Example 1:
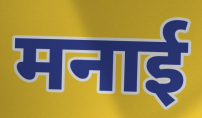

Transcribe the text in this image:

मनाई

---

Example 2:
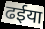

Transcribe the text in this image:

ढईया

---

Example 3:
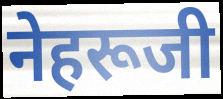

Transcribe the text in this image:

नेहरूजी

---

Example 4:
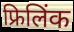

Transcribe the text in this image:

फ्रिलिंक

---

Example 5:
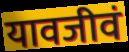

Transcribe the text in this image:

यावजीवं